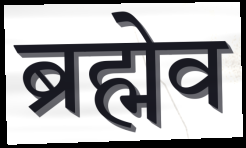
ब्रह्मेव